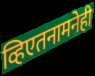
व्हिएतनामनेही